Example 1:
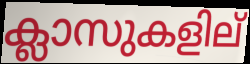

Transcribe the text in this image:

ക്ലാസുകളില്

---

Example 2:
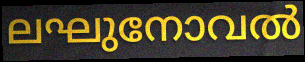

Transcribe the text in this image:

ലഘുനോവൽ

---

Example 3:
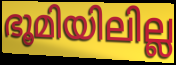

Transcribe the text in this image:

ഭൂമിയിലില്ല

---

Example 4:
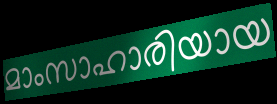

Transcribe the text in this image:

മാംസാഹാരിയായ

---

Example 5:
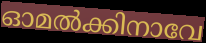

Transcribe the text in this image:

ഓമൽക്കിനാവേ